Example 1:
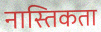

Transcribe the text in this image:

नास्तिकता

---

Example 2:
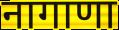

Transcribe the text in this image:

नागाणा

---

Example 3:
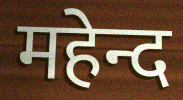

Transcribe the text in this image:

महेन्द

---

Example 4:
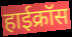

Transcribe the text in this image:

हाईक्रॉस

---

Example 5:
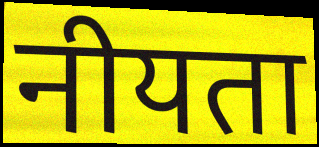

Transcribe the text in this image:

नीयता